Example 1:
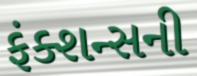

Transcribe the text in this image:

ફંક્શન્સની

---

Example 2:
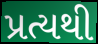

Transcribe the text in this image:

પ્રત્યથી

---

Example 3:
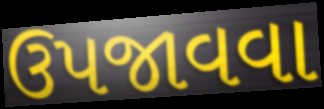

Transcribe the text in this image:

ઉપજાવવા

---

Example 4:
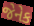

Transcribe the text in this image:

જેનેક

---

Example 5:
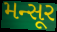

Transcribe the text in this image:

મન્સૂર